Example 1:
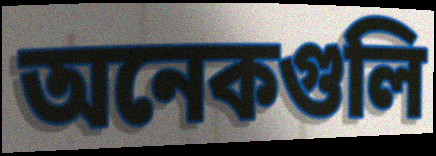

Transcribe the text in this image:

অনেকগুলি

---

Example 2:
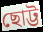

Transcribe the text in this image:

ছোট্ট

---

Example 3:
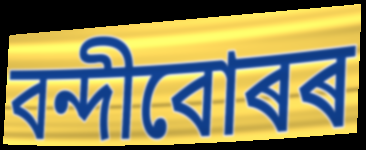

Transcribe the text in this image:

বন্দীবোৰৰ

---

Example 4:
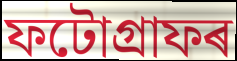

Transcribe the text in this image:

ফটোগ্ৰাফৰ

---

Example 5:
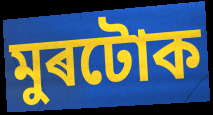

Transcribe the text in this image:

মুৰটোক